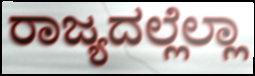
ರಾಜ್ಯದಲ್ಲೆಲ್ಲಾ